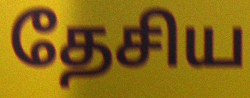
தேசிய